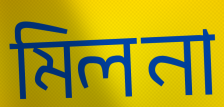
মিলনা